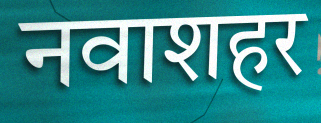
नवाशहर